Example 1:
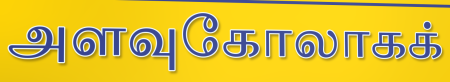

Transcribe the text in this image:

அளவுகோலாகக்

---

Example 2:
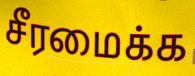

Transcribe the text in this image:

சீரமைக்க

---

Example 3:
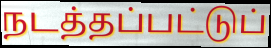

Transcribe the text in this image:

நடத்தப்பட்டுப்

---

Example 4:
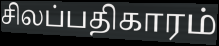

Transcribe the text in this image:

சிலப்பதிகாரம்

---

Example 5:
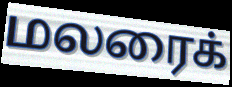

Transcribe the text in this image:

மலரைக்